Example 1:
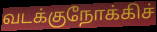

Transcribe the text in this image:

வடக்குநோக்கிச்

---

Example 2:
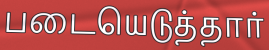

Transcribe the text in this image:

படையெடுத்தார்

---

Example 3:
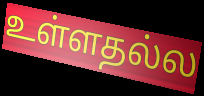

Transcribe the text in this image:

உள்ளதல்ல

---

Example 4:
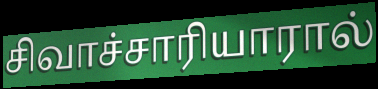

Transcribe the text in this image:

சிவாச்சாரியாரால்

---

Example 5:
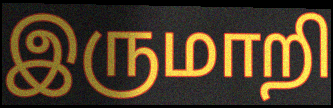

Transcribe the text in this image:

இருமாறி